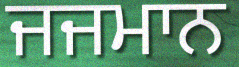
ਜਜਮਾਨ